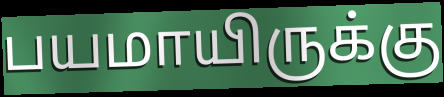
பயமாயிருக்கு